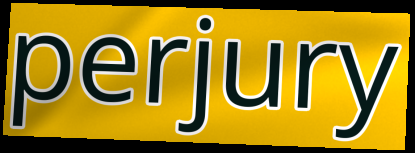
perjury